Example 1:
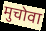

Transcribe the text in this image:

मुचोवा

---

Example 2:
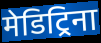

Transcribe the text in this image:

मेडिट्रिना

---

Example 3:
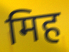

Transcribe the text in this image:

मिह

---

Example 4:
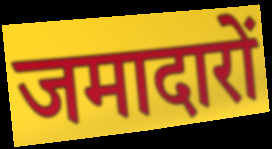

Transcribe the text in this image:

जमादारों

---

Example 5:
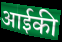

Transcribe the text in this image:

आईकी